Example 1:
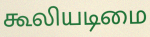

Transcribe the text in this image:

கூலியடிமை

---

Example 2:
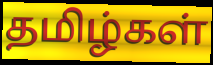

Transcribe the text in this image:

தமிழ்கள்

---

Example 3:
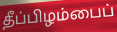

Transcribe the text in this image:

தீப்பிழம்பைப்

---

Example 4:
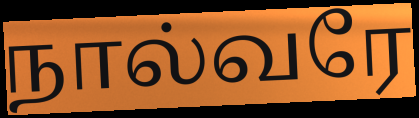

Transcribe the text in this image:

நால்வரே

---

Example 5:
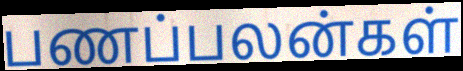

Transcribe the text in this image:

பணப்பலன்கள்